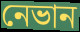
নেভান